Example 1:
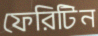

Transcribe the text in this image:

ফেরিটিন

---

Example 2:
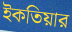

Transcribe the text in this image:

ইকতিয়ার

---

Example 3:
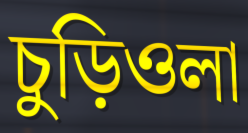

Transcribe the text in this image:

চুড়িওলা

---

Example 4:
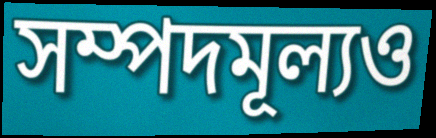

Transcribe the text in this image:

সম্পদমূল্যও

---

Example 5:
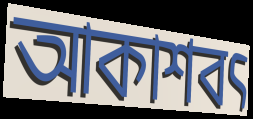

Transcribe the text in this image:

আকাশবৎ